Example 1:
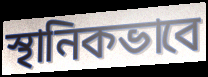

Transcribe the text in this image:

স্থানিকভাবে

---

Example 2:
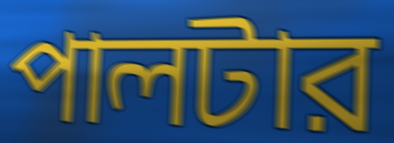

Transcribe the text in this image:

পালটার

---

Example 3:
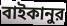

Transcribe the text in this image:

বাইকানুর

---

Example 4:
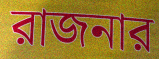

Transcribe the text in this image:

রাজনার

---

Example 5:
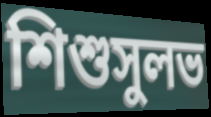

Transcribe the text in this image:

শিশুসুলভ